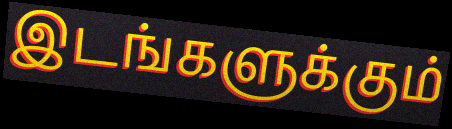
இடங்களுக்கும்